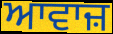
ਆਵਾਜ਼